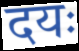
दयः